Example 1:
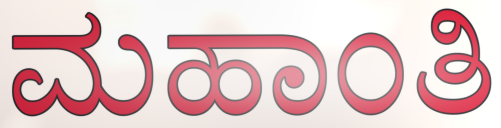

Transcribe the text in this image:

ಮಹಾಂತಿ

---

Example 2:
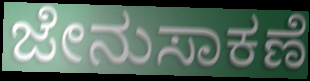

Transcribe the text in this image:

ಜೇನುಸಾಕಣೆ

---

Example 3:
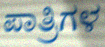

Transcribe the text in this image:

ಪಾತ್ರಿಗಳ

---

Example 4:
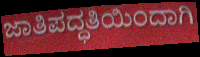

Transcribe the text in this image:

ಜಾತಿಪದ್ಧತಿಯಿಂದಾಗಿ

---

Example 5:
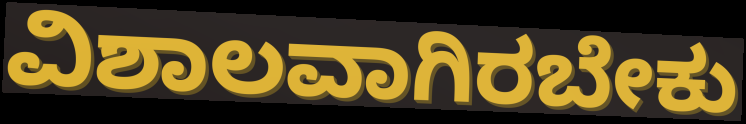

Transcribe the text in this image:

ವಿಶಾಲವಾಗಿರಬೇಕು